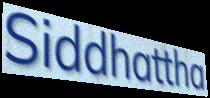
Siddhattha